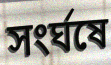
সংর্ঘষে